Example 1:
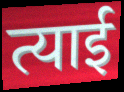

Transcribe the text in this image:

त्याई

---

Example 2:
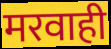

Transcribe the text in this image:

मरवाही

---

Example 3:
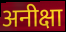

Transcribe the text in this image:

अनीक्षा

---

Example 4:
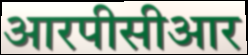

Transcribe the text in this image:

आरपीसीआर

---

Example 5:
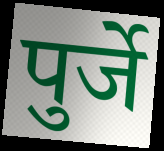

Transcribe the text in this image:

पुर्जे